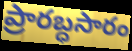
ప్రారబ్ధసారం